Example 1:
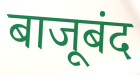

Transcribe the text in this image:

बाजूबंद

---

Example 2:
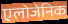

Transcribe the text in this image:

एलोजेनिक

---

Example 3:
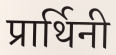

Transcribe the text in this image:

प्रार्थिनी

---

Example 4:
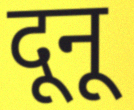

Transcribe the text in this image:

दूनू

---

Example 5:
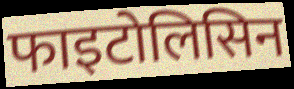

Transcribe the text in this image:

फाइटोलिसिन